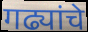
गढ्यांचे